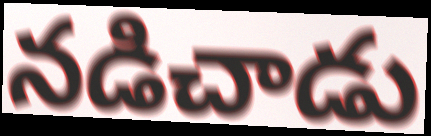
నడిచాడు